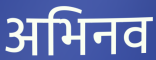
अभिनव